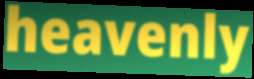
heavenly